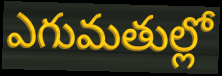
ఎగుమతుల్లో